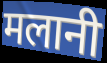
मलानी